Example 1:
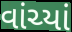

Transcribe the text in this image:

વાંચ્યાં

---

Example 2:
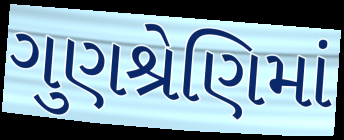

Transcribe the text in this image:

ગુણશ્રેણિમાં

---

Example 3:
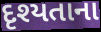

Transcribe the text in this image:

દૃશ્યતાના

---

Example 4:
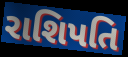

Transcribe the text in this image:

રાશિપતિ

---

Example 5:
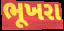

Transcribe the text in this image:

ભૂખરા